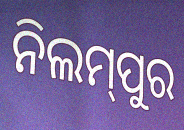
ନିଲମ୍‍ପୁର